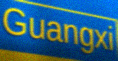
Guangxi